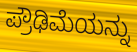
ಪ್ರೌಢಿಮೆಯನ್ನು